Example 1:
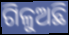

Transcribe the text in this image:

ଗିଳୁଅଛି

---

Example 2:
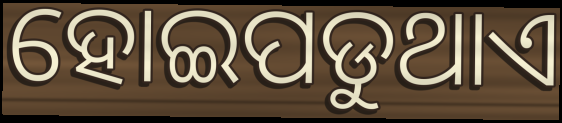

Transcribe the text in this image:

ହୋଇପଡୁଥାଏ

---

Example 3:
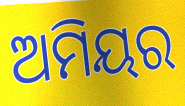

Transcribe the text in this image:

ଅମିୟର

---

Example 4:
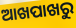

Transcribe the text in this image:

ଆଖପାଖରୁ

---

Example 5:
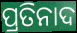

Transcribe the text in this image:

ପ୍ରତିନାଦ